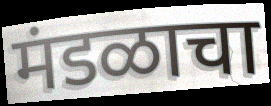
मंडळाचा